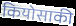
कियोसाकी